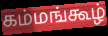
கம்மங்கூழ்